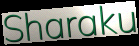
Sharaku